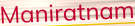
Maniratnam